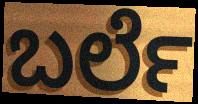
ಬರ್ಲೆ